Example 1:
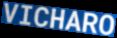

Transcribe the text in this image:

VICHARO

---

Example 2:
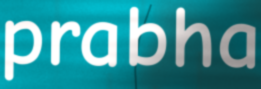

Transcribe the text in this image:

prabha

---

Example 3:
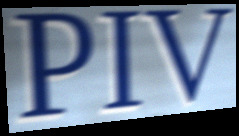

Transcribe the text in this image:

PIV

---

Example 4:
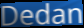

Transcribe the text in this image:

Dedan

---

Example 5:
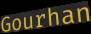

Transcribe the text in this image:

Gourhan